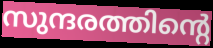
സുന്ദരത്തിന്റെ